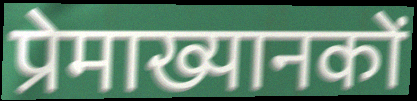
प्रेमाख्यानकों